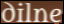
dilne